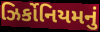
ઝિર્કોનિયમનું